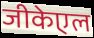
जीकेएल